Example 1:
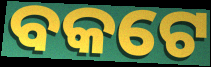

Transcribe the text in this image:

ବକଟେ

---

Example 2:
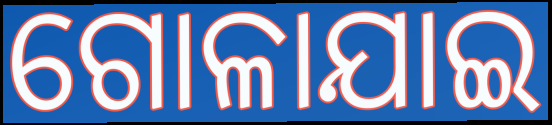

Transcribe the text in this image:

ଗୋଳାଯାଇ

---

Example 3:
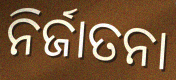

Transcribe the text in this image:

ନିର୍ଜାତନା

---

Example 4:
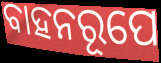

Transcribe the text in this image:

ବାହନରୂପେ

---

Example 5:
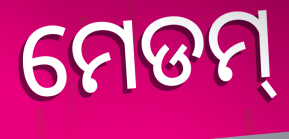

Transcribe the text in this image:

ମେଡମ୍